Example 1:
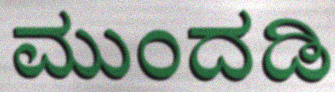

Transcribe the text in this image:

ಮುಂದಡಿ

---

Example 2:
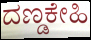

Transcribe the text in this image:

ದಣ್ಡಕೇಹಿ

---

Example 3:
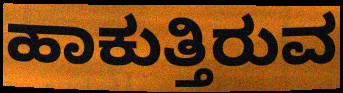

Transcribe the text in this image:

ಹಾಕುತ್ತಿರುವ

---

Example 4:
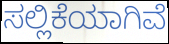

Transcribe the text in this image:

ಸಲ್ಲಿಕೆಯಾಗಿವೆ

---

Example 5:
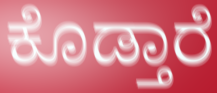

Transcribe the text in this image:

ಕೊಡ್ತಾರೆ